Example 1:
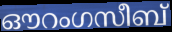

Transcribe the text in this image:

ഔറംഗസീബ്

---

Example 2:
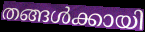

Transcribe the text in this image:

തങ്ങൾക്കായി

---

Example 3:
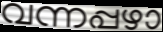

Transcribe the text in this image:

വന്നപ്പഴാ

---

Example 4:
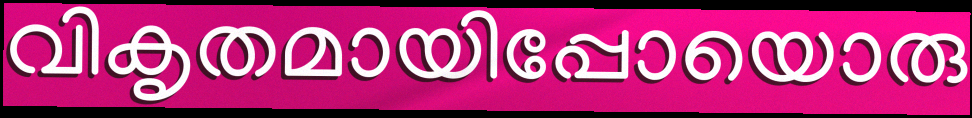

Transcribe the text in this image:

വികൃതമായിപ്പോയൊരു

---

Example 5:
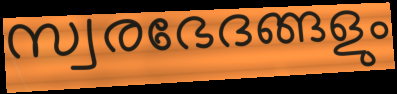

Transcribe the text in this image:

സ്വരഭേദങ്ങളും